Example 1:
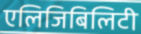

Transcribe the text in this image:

एलिजिबिलिटी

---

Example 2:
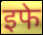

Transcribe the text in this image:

इफे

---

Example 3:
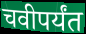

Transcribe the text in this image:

चवीपर्यंत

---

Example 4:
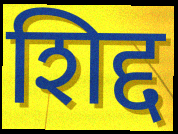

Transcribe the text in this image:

शिद्द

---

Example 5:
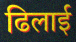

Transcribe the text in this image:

ढिलाई